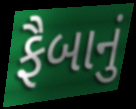
ફૈબાનું